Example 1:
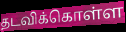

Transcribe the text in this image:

தடவிக்கொள்ள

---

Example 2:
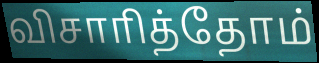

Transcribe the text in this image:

விசாரித்தோம்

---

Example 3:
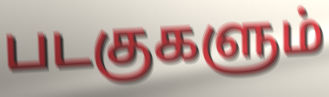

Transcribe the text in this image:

படகுகளும்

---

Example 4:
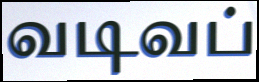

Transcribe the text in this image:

வடிவப்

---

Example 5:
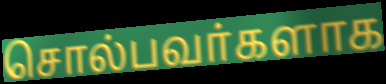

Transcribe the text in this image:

சொல்பவர்களாக